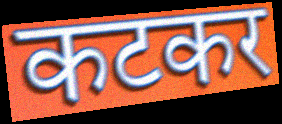
कटकर